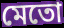
মেতো